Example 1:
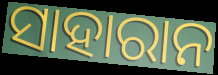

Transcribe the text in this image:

ସାହାରାନ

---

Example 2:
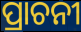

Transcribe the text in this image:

ପ୍ରାଚନୀ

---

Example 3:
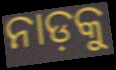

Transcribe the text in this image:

ନାଡ଼କୁ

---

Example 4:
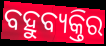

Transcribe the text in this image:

ବହୁବ୍ୟକ୍ତିର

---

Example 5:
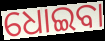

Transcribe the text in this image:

ଧୋଇବା